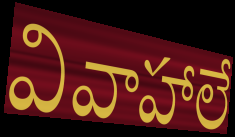
వివాహాలే